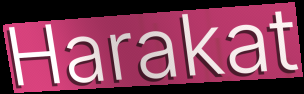
Harakat